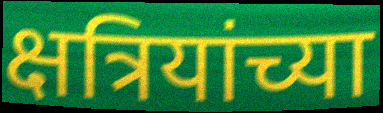
क्षत्रियांच्या